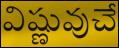
విష్ణువుచే